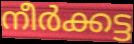
നീർക്കട്ട